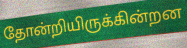
தோன்றியிருக்கின்றன